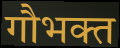
गौभक्त